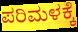
ಪರಿಮಳಕ್ಕೆ